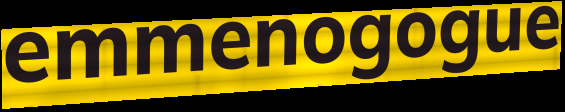
emmenogogue